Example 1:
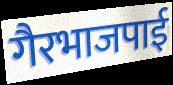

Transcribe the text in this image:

गैरभाजपाई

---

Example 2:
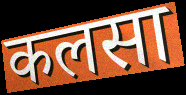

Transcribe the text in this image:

कलसा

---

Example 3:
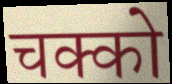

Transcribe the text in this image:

चक्को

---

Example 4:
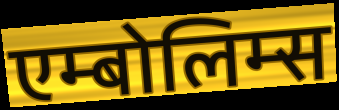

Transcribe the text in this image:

एम्बोलिम्स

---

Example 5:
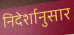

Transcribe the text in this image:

निदेर्शानुसार